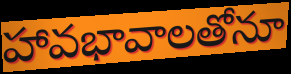
హావభావాలతోనూ